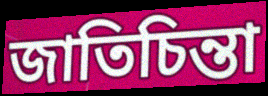
জাতিচিন্তা